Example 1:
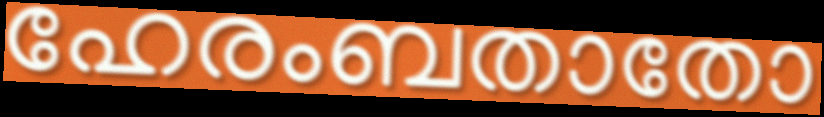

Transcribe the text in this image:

ഹേരംബതാതോ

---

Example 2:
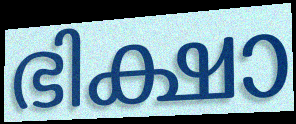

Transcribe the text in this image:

ഭിക്ഷാ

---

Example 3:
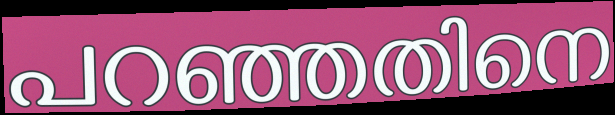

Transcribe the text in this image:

പറഞ്ഞതിനെ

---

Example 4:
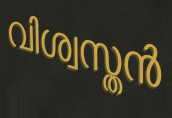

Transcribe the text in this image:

വിശ്വസ്തൻ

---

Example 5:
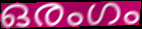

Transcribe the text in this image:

ഒരംഗം